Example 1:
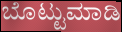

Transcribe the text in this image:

ಬೊಟ್ಟುಮಾಡಿ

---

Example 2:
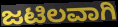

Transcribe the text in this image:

ಜಟಿಲವಾಗಿ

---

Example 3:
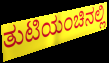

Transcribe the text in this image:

ತುಟಿಯಂಚಿನಲ್ಲಿ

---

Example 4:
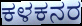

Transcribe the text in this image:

ಕಳಕನರ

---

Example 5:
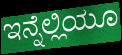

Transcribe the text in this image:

ಇನ್ನೆಲ್ಲಿಯೂ